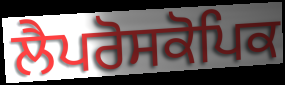
ਲੈਪਰੋਸਕੋਪਿਕ